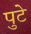
पुटे